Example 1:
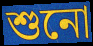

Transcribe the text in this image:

শুনো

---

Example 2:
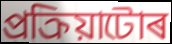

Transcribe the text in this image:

প্ৰক্ৰিয়াটোৰ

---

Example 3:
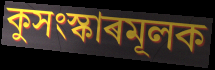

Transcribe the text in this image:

কুসংস্কাৰমূলক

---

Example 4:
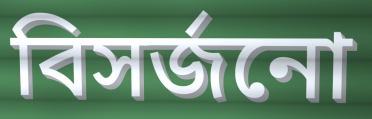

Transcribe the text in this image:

বিসৰ্জনো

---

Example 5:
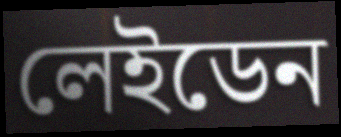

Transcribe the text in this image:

লেইডেন